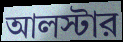
আলস্টার